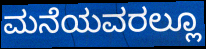
ಮನೆಯವರಲ್ಲೂ